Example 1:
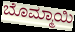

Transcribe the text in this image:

ಬೊಮ್ಮಾಯಿ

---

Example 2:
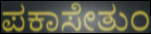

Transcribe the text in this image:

ಪಕಾಸೇತುಂ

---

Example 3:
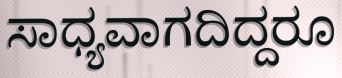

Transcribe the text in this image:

ಸಾಧ್ಯವಾಗದಿದ್ದರೂ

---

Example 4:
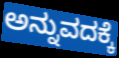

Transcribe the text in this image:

ಅನ್ನುವದಕ್ಕೆ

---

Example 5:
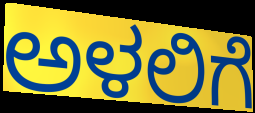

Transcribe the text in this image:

ಅಳಲಿಗೆ